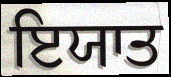
ਇਯਾਤ